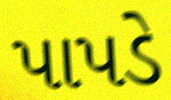
પાપડે